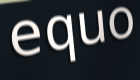
equo